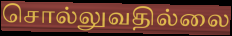
சொல்லுவதில்லை